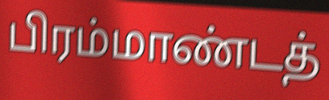
பிரம்மாண்டத்